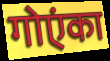
गोएंका